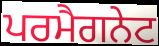
ਪਰਮੈਗਨੇਟ